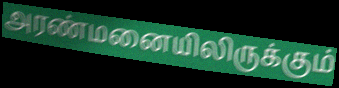
அரண்மனையிலிருக்கும்